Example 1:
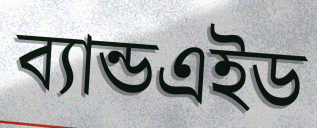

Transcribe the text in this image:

ব্যান্ডএইড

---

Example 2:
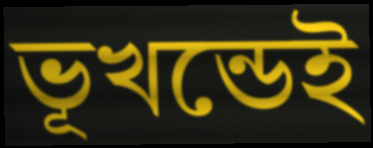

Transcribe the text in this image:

ভূখন্ডেই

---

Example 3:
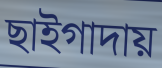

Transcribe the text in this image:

ছাইগাদায়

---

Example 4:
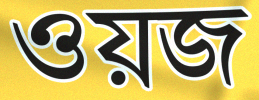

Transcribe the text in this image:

ওয়জ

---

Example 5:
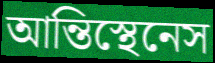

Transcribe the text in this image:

আন্তিস্থেনেস